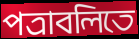
পত্রাবলিতে